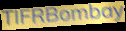
TIFRBombay